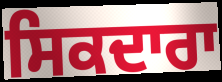
ਸਿਕਦਾਰਾ